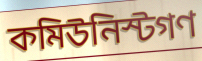
কমিউনিস্টগণ